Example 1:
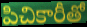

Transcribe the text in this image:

పిచికారీతో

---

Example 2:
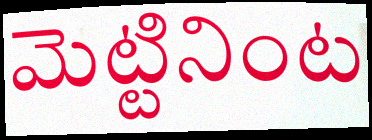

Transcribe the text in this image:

మెట్టినింట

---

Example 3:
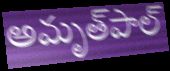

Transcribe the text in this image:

అమృత్‌పాల్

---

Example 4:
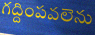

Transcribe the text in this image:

గద్దింపవలెను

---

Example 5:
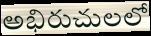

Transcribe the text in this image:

అభిరుచులలో